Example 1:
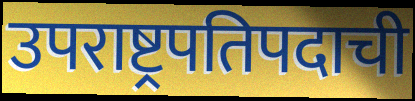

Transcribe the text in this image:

उपराष्ट्रपतिपदाची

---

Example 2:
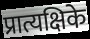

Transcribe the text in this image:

प्रात्यक्षिके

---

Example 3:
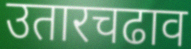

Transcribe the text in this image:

उतारचढाव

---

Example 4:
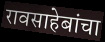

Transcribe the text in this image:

रावसाहेबांचा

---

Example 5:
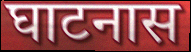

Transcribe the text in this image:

घाटनास